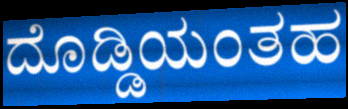
ದೊಡ್ಡಿಯಂತಹ